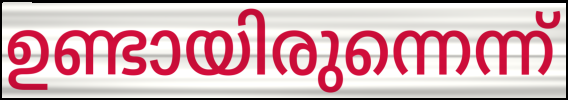
ഉണ്ടായിരുന്നെന്ന്